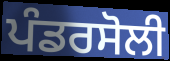
ਪੰਡਰਸੋਲੀ